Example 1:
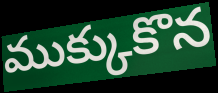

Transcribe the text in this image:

ముక్కుకొన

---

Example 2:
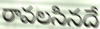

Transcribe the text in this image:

రావలసినదే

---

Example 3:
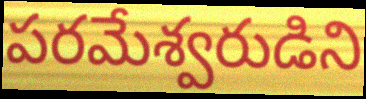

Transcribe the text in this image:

పరమేశ్వరుడిని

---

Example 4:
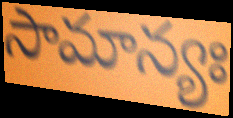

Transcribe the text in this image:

సామాన్యః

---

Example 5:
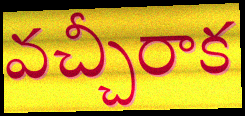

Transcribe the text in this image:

వచ్చీరాక